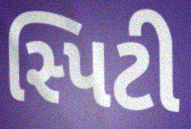
સ્પિટી